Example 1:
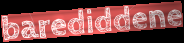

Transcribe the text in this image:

barediddene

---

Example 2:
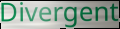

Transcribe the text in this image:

Divergent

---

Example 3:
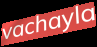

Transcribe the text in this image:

vachayla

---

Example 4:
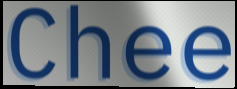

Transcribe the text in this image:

Chee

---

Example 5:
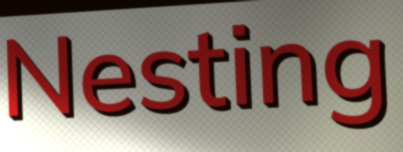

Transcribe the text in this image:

Nesting